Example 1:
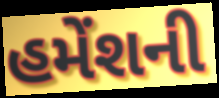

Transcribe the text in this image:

હમેંશની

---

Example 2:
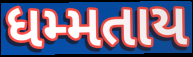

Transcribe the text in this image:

ધમ્મતાય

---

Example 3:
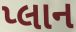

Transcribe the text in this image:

પ્લાન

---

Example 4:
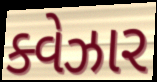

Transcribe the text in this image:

ક્વેઝાર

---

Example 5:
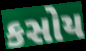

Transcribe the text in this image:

કસોય